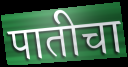
पातीचा